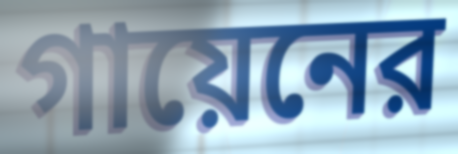
গায়েনের